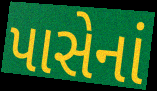
પાસેનાં